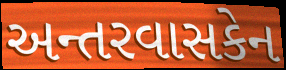
અન્તરવાસકેન